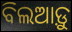
ବିଲଆଡ଼ୁ